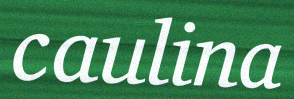
caulina